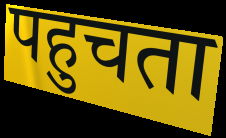
पहुचता